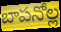
బాపనోల్ల